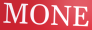
MONE